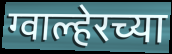
ग्वाल्हेरच्या